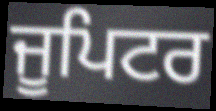
ਜੂਪਿਟਰ